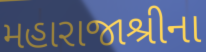
મહારાજાશ્રીના